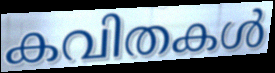
കവിതകൾ